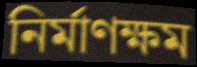
নির্মাণক্ষম